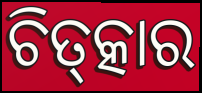
ଚିତ୍‌ତ୍କାର